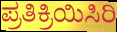
ಪ್ರತಿಕ್ರಿಯಿಸಿರಿ